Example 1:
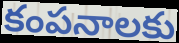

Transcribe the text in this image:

కంపనాలకు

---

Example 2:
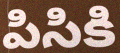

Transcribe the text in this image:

పిసికి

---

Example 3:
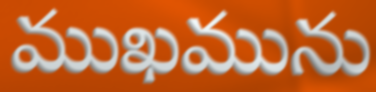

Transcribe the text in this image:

ముఖమును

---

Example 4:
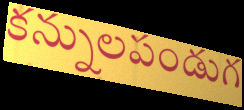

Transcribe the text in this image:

కన్నులపండుగ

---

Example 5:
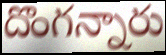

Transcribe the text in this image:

దొంగన్నారు